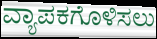
ವ್ಯಾಪಕಗೊಳಿಸಲು